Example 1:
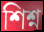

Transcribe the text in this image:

শিশ্ন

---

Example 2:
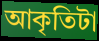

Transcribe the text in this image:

আকৃতিটা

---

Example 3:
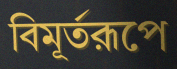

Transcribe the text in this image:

বিমূর্তরূপে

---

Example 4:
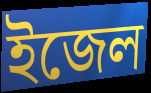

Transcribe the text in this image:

ইজেল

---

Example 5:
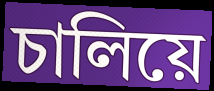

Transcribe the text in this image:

চালিয়ে